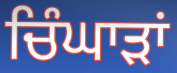
ਚਿੰਘਾੜਾਂ